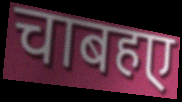
चाबहए